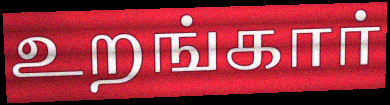
உறங்கார்